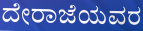
ದೇರಾಜೆಯವರ